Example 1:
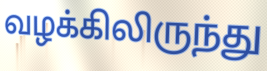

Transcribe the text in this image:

வழக்கிலிருந்து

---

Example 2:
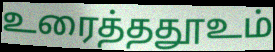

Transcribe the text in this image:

உரைத்ததூஉம்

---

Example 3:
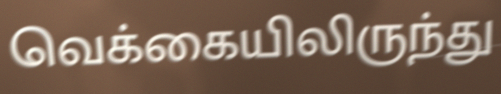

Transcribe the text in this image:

வெக்கையிலிருந்து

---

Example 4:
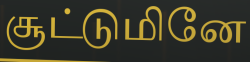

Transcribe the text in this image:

சூட்டுமினே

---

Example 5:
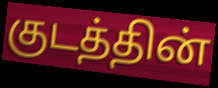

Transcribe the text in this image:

குடத்தின்